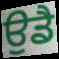
ਉਡੈ